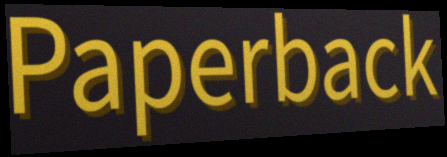
Paperback